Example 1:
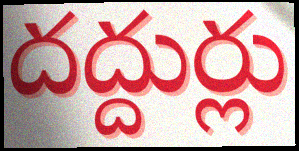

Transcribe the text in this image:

దద్దుర్లు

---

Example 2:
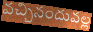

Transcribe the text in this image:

వచ్చినందువల్ల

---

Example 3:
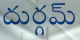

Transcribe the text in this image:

దుర్గమ్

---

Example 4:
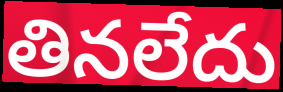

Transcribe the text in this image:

తినలేదు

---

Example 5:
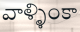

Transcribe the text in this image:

వాళ్ళింకా